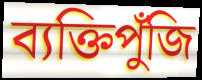
ব্যক্তিপুঁজি